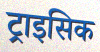
ट्राइसिक